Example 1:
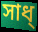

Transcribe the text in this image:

সাধ্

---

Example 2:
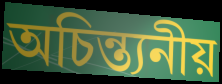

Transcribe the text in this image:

অচিন্ত্যনীয়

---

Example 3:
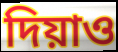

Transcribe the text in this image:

দিয়াও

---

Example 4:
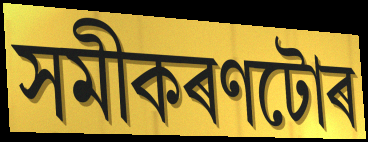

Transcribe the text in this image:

সমীকৰণটোৰ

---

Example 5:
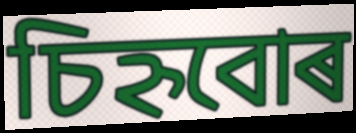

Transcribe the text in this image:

চিহ্নবোৰ